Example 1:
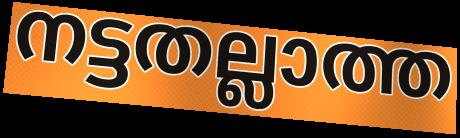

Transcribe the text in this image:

നട്ടതല്ലാത്ത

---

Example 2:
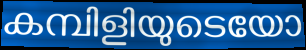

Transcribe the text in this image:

കമ്പിളിയുടെയോ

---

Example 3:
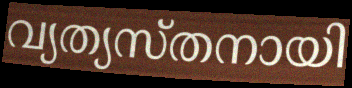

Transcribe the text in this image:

വ്യത്യസ്തനായി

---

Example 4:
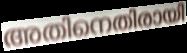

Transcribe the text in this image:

അതിനെതിരായി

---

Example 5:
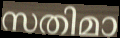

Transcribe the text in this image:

സതിമാ